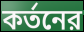
কর্তনের